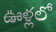
ఊళ్లలో